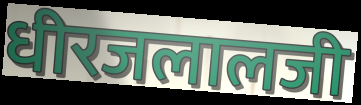
धीरजलालजी